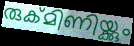
രുക്മിണിയ്ക്കും